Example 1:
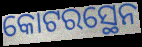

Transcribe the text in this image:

କୋଟରସ୍ଥେନ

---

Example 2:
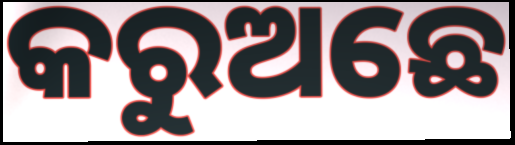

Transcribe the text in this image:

କରୁଅଛେ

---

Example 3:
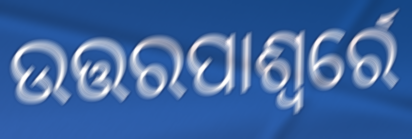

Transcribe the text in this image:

ଉତ୍ତରପାଶ୍ୱର୍ରେ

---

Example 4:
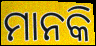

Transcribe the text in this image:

ମାନକି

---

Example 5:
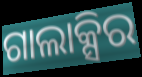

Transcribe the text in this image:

ଗାଲାକ୍ସିର